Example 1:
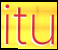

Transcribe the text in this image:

itu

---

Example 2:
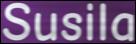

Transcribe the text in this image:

Susila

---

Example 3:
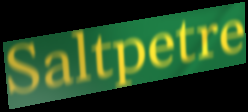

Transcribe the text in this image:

Saltpetre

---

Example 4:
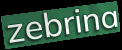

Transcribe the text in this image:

zebrina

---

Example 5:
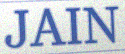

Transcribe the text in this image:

JAIN